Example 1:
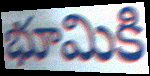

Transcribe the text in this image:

భూమికి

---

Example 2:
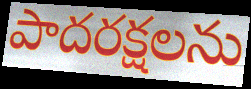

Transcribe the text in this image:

పాదరక్షలను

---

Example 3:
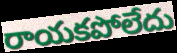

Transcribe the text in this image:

రాయకపోలేదు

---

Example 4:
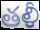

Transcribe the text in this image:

తళీ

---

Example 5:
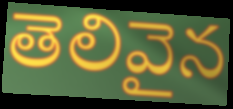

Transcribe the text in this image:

తెలివైన